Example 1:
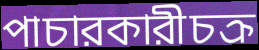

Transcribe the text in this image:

পাচারকারীচক্র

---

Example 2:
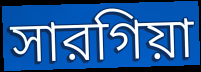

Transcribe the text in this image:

সারগিয়া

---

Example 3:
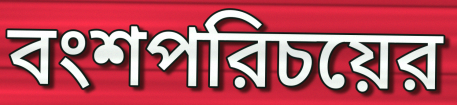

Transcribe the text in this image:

বংশপরিচয়ের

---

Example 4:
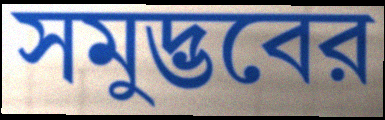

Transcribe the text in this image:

সমুদ্ভবের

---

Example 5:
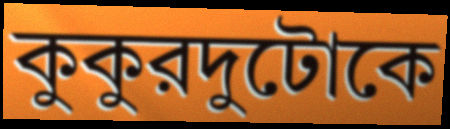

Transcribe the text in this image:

কুকুরদুটোকে